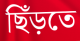
ছিঁড়তে